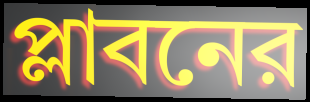
প্লাবনের